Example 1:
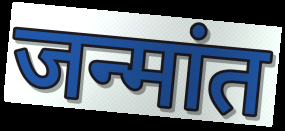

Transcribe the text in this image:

जन्मांत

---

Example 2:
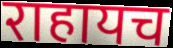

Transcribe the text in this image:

राहायच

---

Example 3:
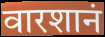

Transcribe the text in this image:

वारशानं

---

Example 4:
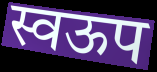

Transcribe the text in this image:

स्वऊप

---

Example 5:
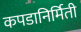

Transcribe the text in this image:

कपडानिर्मिती